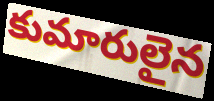
కుమారులైన